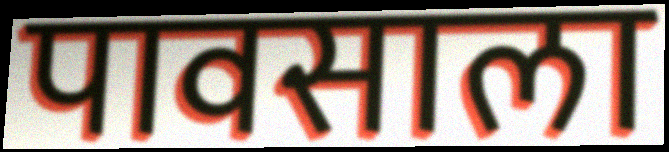
पावसाला